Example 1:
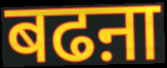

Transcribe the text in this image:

बढऩा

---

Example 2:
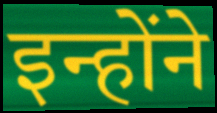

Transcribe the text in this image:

इन्‍होंने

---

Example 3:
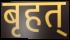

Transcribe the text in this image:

बृहत्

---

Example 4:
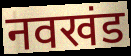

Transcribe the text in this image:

नवखंड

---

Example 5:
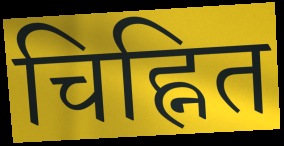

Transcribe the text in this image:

चिह्नित